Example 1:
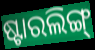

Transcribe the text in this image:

ଷ୍ଟାରଲିଙ୍ଗ୍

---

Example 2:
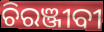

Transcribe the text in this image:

ଚିରଞ୍ଜୀବୀ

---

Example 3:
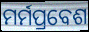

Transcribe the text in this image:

ମର୍ମପ୍ରବେଶ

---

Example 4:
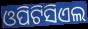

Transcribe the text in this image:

ଓପିଟିସିଏଲ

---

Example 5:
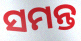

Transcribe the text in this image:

ସମନ୍ତ